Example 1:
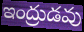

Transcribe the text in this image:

ఇంద్రుడవు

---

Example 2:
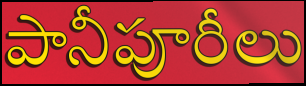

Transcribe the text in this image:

పానీపూరీలు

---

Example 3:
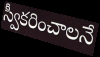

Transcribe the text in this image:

స్వీకరించాలనే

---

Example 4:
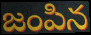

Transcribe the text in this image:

జంపిన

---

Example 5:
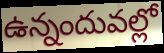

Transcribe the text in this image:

ఉన్నందువల్లో